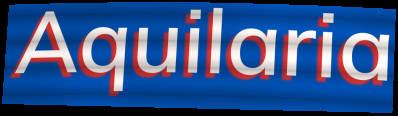
Aquilaria